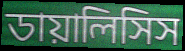
ডায়ালিসিস